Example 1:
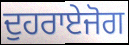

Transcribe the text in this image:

ਦੁਹਰਾਏਜੋਗ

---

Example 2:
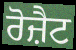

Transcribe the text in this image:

ਰੋਜ਼ੈਟ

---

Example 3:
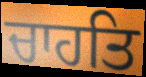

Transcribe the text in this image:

ਚਾਹਤਿ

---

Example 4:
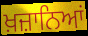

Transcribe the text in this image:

ਖ਼ਜ਼ਾਨਿਆਂ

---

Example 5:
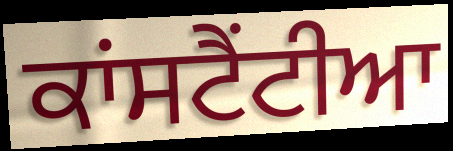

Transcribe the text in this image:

ਕਾਂਸਟੈਂਟੀਆ